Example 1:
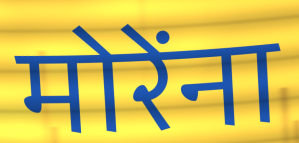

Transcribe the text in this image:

मोरेंना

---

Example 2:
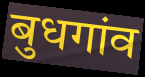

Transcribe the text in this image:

बुधगांव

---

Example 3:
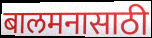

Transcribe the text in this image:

बालमनासाठी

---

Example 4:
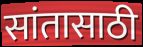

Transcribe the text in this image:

सांतासाठी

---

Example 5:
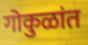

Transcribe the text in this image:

गोकुळांत